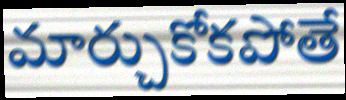
మార్చుకోకపోతే